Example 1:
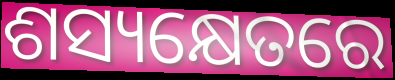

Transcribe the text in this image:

ଶସ୍ୟକ୍ଷେତରେ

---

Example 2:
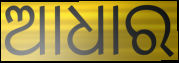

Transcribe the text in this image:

ଆଧାର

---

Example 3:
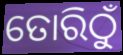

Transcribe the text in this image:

ତୋରିଠୁଁ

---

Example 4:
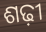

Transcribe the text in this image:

ଶଢ଼ୀ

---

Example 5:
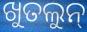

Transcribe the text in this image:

ଖୁତଲୁନ୍